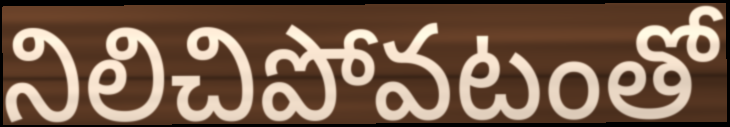
నిలిచిపోవటంతో